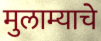
मुलाम्याचे